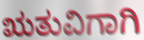
ಋತುವಿಗಾಗಿ